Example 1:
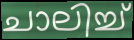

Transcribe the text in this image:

ചാലിച്ച്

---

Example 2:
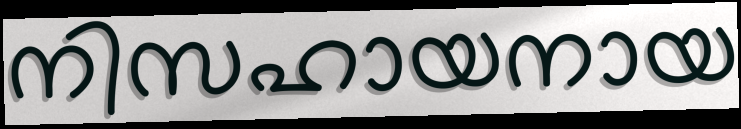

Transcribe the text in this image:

നിസഹായനായ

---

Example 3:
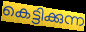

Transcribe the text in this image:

കെട്ടിക്കുന്ന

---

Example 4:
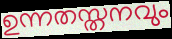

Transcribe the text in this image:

ഉന്നതസ്തനവും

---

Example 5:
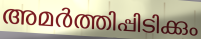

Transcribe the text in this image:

അമർത്തിപ്പിടിക്കും